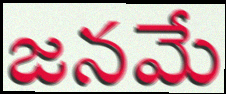
జనమే